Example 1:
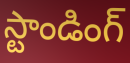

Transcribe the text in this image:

స్టాండింగ్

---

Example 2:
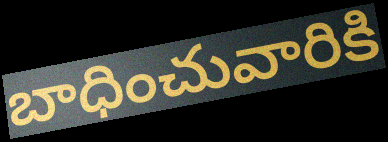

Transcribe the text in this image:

బాధించువారికి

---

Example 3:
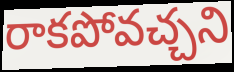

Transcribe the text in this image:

రాకపోవచ్చని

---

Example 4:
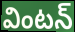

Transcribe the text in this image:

వింటన్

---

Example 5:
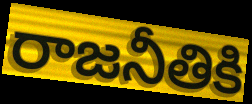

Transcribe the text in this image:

రాజనీతికి